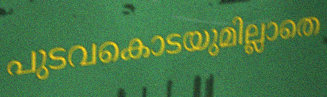
പുടവകൊടയുമില്ലാതെ